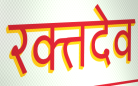
रक्तदेव